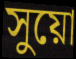
সুয়ো